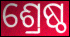
ଶ୍ରେଷ୍ଠ